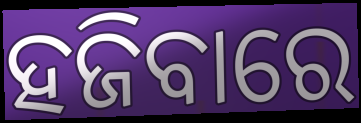
ହଜିବାରେ